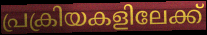
പ്രക്രിയകളിലേക്ക്